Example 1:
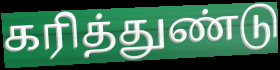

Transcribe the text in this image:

கரித்துண்டு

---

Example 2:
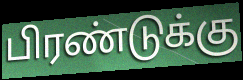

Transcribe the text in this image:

பிரண்டுக்கு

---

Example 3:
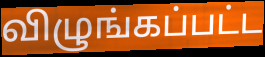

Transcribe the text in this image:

விழுங்கப்பட்ட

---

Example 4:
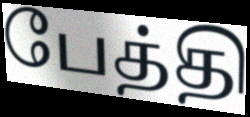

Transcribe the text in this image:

பேத்தி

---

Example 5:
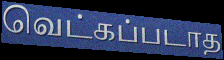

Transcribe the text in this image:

வெட்கப்படாத